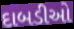
દાબડીઓ